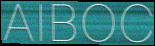
AIBOC